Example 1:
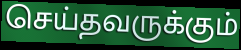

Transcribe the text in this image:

செய்தவருக்கும்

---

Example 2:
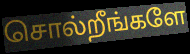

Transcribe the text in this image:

சொல்றீங்களே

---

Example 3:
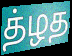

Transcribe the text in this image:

த்ழத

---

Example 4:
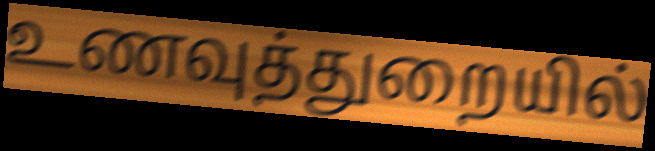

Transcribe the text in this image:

உணவுத்துறையில்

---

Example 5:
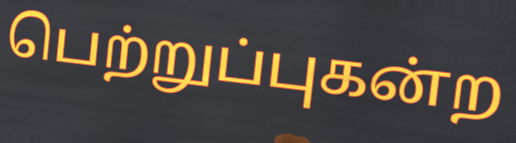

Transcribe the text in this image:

பெற்றுப்புகன்ற